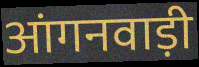
आंगनवाड़ी